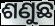
ଶଣୁଛ